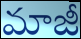
మాజీ